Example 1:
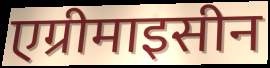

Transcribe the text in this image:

एग्रीमाइसीन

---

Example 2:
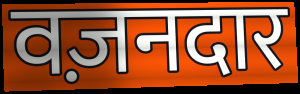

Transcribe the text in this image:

वज़नदार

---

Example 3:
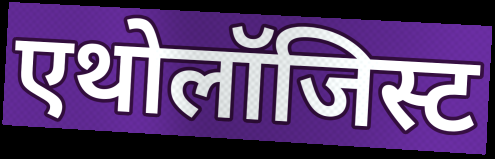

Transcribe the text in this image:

एथोलॉजिस्ट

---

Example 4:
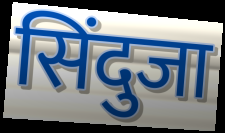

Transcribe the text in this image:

सिंदुजा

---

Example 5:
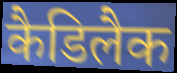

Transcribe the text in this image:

कैडिलैक